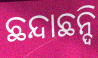
ଛନ୍ଦାଛନ୍ଦି